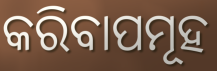
କରିବାପମୂହ